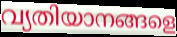
വ്യതിയാനങ്ങളെ